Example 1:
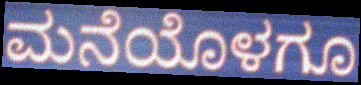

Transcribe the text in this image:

ಮನೆಯೊಳಗೂ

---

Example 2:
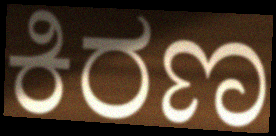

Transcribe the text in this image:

ಕಿರಣ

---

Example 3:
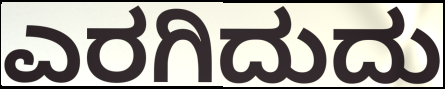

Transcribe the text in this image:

ಎರಗಿದುದು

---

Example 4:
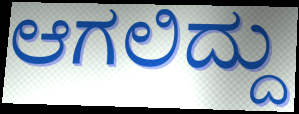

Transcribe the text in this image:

ಆಗಲಿದ್ದು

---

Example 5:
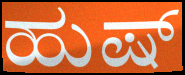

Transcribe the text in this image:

ಹುಷ್